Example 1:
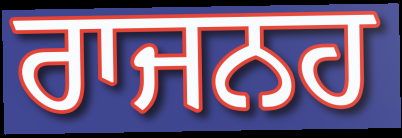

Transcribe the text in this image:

ਰਾਜਨਹ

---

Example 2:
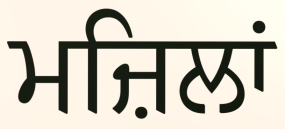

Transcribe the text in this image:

ਮਜ਼ਿਲਾਂ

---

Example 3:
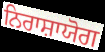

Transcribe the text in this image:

ਨਿਰਾਸ਼ਾਯੋਗ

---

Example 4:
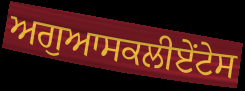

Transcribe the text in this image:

ਅਗੁਆਸਕਲੀਏਂਟੇਸ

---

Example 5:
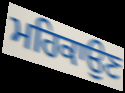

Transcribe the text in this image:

ਮਹਿਕਾਉਣ